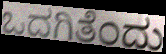
ಒದಗಿತೆಂದು